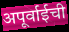
अपूर्वाईची